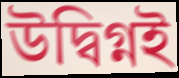
উদ্বিগ্নই